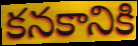
కనకానికి